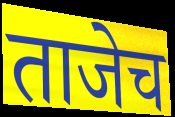
ताजेच